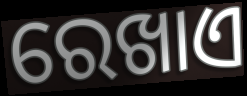
ରେଖାଏ